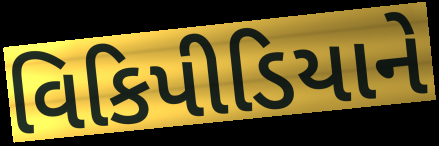
વિકિપીડિયાને